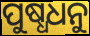
ପୁଷ୍ଧଧନୁ